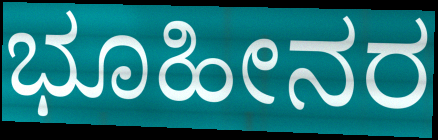
ಭೂಹೀನರ